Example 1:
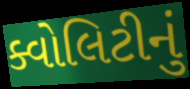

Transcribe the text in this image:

ક્વોલિટીનું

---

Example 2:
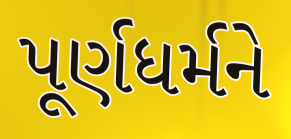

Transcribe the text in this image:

પૂર્ણધર્મને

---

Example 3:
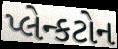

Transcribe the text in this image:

પ્લેન્કટોન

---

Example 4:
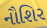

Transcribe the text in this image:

નૌશિર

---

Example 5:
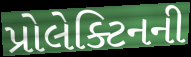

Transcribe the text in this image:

પ્રોલેક્ટિનની